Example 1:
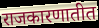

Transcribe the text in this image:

राजकारणातीत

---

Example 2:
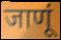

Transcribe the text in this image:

जाणूं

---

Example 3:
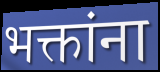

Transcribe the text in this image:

भक्तांना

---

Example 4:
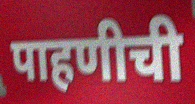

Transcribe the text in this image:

पाहणीची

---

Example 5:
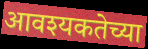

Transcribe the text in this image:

आवश्यकतेच्या